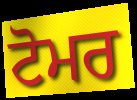
ਟੋਮਰ